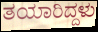
ತಯಾರಿದ್ದಳು